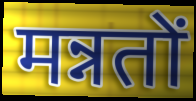
मन्नतों